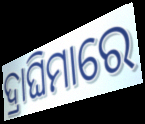
ଦ୍ରାଘିମାରେ